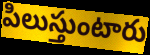
పిలుస్తుంటారు